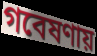
গবেষণায়